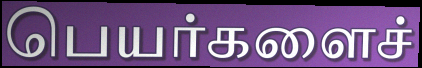
பெயர்களைச்